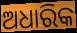
ଅଧାରିକ